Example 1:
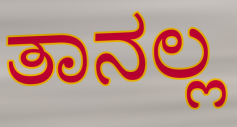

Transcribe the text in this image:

ತಾನಲ್ಲ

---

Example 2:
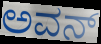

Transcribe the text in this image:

ಅವನ್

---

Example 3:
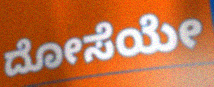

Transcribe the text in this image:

ದೋಸೆಯೇ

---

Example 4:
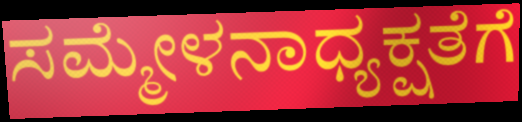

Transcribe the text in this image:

ಸಮ್ಮೇಳನಾಧ್ಯಕ್ಷತೆಗೆ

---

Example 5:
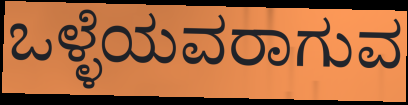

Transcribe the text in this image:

ಒಳ್ಳೆಯವರಾಗುವ